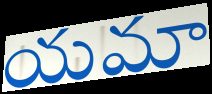
యమా